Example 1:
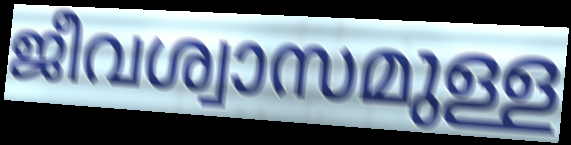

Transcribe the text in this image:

ജീവശ്വാസമുള്ള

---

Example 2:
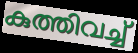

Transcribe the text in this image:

കുത്തിവച്ച്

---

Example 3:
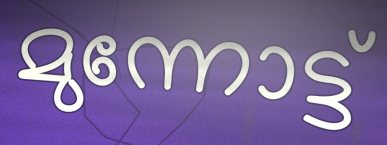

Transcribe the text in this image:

മുന്നോട്ട്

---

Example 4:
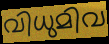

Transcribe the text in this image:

വിധുമിവ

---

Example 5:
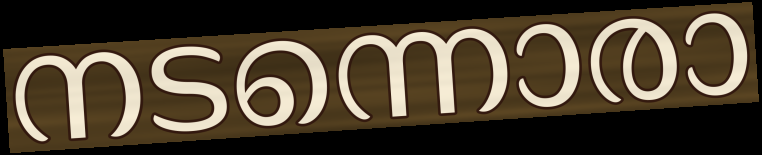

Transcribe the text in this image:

നടന്നൊരാ